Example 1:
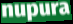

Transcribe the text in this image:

nupura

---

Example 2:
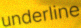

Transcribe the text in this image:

underline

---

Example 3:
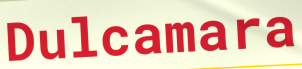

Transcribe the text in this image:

Dulcamara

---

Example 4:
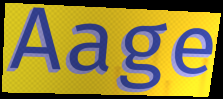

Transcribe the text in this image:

Aage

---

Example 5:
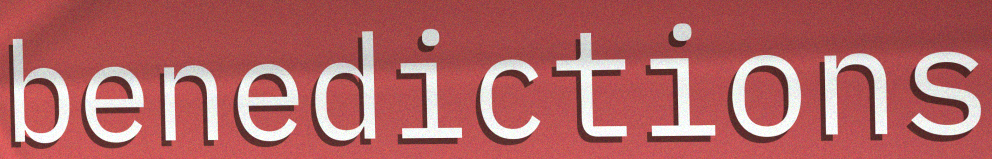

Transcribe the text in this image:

benedictions